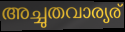
അച്ചുതവാര്യര്